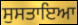
ਸੁਸਤਾਇਆ